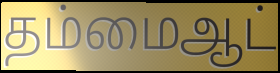
தம்மைஆட்